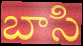
బాసి